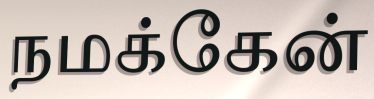
நமக்கேன்